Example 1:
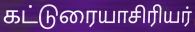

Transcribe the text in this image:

கட்டுரையாசிரியர்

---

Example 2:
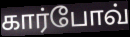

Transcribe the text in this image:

கார்போவ்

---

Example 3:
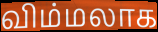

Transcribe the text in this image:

விம்மலாக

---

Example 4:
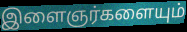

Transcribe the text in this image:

இளைஞர்களையும்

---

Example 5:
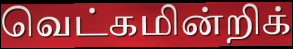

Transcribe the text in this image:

வெட்கமின்றிக்